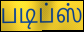
படிப்ஸ்